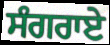
ਸੰਗਰਾਏ